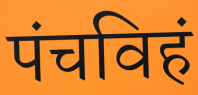
पंचविहं